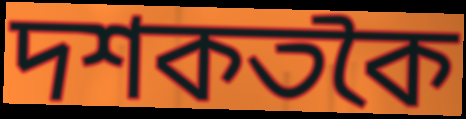
দশকতকৈ